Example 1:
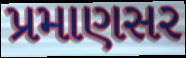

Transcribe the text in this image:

પ્રમાણસર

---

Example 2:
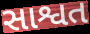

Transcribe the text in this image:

સાશ્વત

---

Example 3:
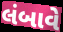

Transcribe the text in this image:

લંબાવે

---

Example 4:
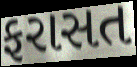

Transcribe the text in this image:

ફરાસત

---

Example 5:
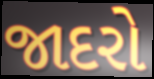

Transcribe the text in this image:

જાદરો